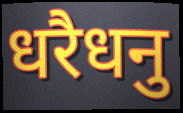
धरैधनु